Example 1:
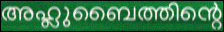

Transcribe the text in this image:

അഹ്ലുബൈത്തിന്റെ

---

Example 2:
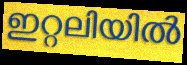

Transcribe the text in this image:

ഇറ്റലിയിൽ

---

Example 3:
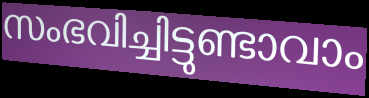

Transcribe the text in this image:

സംഭവിച്ചിട്ടുണ്ടാവാം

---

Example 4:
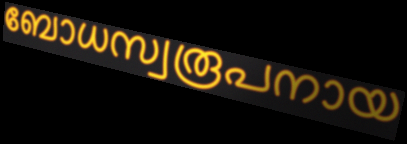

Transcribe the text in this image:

ബോധസ്വരൂപനായ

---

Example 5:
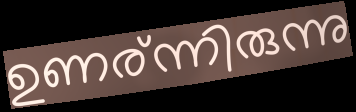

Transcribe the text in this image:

ഉണര്ന്നിരുന്നു